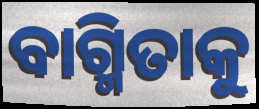
ବାଗ୍ମିତାକୁ